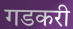
गडकरी